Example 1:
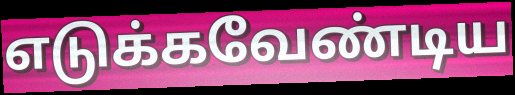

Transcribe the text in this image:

எடுக்கவேண்டிய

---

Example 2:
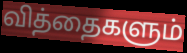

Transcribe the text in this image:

வித்தைகளும்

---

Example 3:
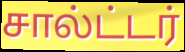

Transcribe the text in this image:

சால்ட்டர்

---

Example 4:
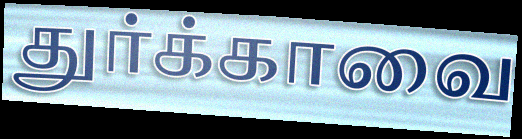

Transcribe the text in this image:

துர்க்காவை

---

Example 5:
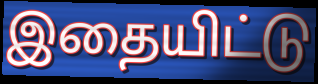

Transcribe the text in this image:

இதையிட்டு